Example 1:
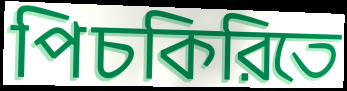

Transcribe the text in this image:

পিচকিরিতে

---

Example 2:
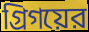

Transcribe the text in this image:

গ্রিগয়ের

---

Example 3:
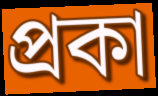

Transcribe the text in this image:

প্রকা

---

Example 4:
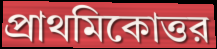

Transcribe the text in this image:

প্রাথমিকোত্তর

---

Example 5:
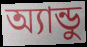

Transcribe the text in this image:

অ্যান্ডু